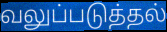
வலுப்படுத்தல்